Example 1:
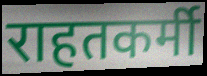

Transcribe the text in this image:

राहतकर्मी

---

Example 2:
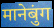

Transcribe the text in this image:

मानेबुंग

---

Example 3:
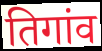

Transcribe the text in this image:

तिगांव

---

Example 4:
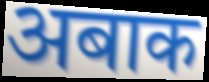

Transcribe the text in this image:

अबाक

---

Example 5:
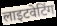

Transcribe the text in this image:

लाइटवेटिंग